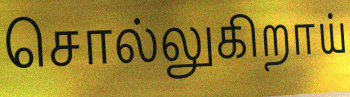
சொல்லுகிறாய்